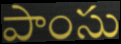
పాంసు